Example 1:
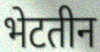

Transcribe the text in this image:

भेटतीन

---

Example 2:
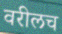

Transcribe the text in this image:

वरीलच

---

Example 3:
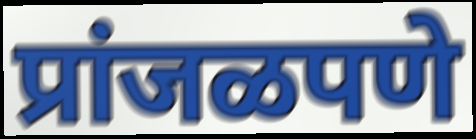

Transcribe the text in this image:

प्रांजळपणे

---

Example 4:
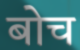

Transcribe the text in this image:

बोच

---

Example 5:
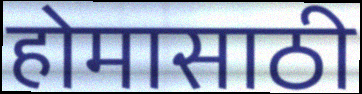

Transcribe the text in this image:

होमासाठी